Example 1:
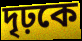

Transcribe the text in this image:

দৃঢ়কে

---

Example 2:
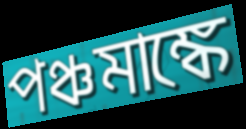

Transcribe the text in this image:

পঞ্চমাঙ্কে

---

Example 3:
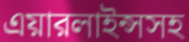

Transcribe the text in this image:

এয়ারলাইন্সসহ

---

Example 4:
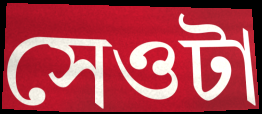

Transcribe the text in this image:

সেওটা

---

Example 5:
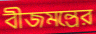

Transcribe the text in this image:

বীজমন্ত্রের